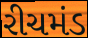
રીચમંડ